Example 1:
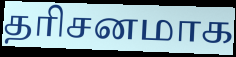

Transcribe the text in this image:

தரிசனமாக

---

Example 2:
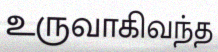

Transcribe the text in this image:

உருவாகிவந்த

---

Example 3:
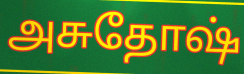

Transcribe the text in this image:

அசுதோஷ்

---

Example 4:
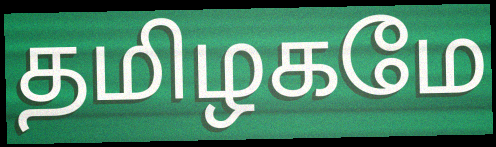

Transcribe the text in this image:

தமிழகமே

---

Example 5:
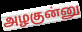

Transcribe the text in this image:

அழகுன்னு